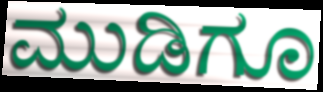
ಮುಡಿಗೂ